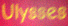
Ulysses